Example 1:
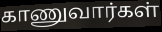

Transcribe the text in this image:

காணுவார்கள்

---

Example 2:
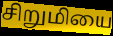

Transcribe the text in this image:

சிறுமியை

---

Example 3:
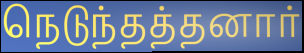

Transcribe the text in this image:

நெடுந்தத்தனார்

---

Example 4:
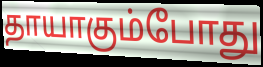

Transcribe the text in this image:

தாயாகும்போது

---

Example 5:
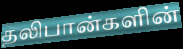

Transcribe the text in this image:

தலிபான்களின்